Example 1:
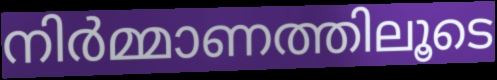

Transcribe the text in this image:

നിർമ്മാണത്തിലൂടെ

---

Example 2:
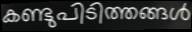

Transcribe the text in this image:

കണ്ടുപിടിത്തങ്ങൾ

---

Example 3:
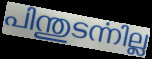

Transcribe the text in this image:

പിന്തുടൎന്നില്ല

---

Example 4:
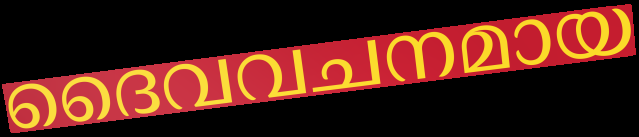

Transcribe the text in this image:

ദൈവവചനമായ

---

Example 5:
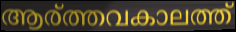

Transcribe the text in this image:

ആര്ത്തവകാലത്ത്